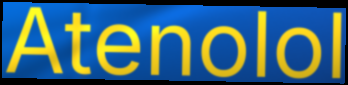
Atenolol